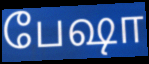
பேஷா